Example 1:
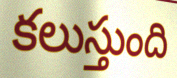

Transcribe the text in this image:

కలుస్తుంది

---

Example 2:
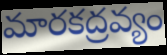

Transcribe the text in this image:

మారకద్రవ్యం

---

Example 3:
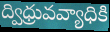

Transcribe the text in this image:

ద్విధ్రువవ్యాధికి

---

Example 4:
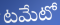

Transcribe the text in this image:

టమేటో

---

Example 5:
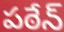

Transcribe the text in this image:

పఠేన్